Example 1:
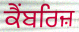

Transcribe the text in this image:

ਕੈਂਬਰਿਜ਼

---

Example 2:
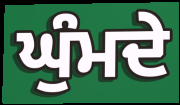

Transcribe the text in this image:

ਘੁੰਮਦੇ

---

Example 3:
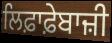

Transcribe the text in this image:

ਲਿਫ਼ਾਫ਼ੇਬਾਜ਼ੀ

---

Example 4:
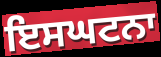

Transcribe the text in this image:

ਇਸਘਟਨਾ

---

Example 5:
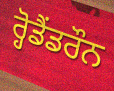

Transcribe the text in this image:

ਰ੍ਹੋਡੈਂਡਰੌਨ